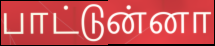
பாட்டுன்னா